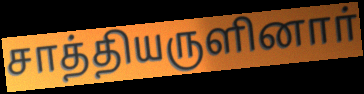
சாத்தியருளினார்